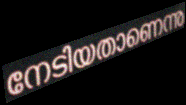
നേടിയതാണെന്നു